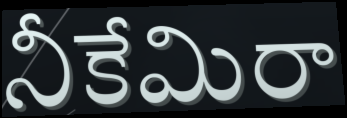
నీకేమిరా